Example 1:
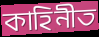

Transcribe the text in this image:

কাহিনীত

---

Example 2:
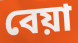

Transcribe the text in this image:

বেয়া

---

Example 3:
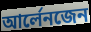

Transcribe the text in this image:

আৰ্লেনজেন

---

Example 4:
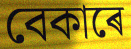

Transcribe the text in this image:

বেকাৰে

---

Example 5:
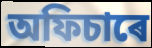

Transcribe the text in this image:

অফিচাৰে